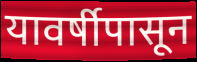
यावर्षीपासून